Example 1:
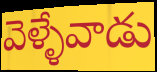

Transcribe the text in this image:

వెళ్ళేవాడు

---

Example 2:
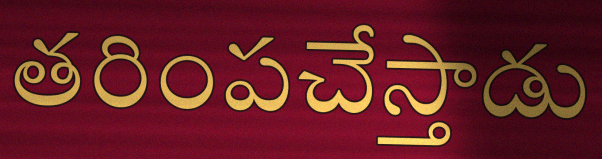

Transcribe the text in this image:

తరింపచేస్తాడు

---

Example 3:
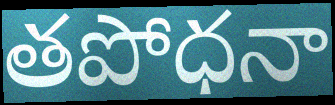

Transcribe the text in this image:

తపోధనా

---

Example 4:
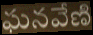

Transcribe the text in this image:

ఘనవేణి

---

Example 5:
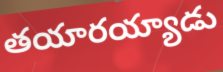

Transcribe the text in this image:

తయారయ్యాడు